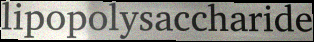
lipopolysaccharide